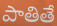
పాతితే